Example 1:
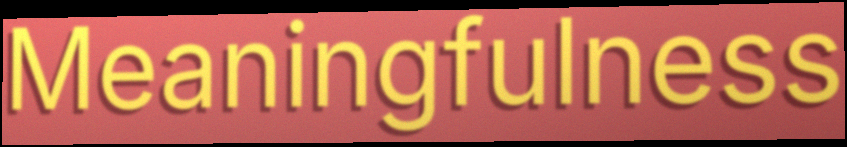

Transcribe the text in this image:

Meaningfulness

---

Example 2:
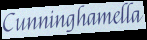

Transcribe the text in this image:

Cunninghamella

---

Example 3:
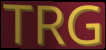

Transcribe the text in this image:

TRG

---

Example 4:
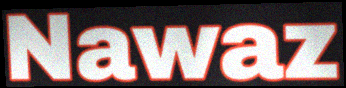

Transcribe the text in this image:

Nawaz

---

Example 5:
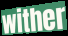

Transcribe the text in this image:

wither